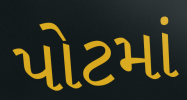
પોટમાં